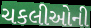
ચકલીઓની